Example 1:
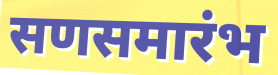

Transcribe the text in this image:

सणसमारंभ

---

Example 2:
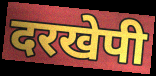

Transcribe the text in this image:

दरखेपी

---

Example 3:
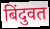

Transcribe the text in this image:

बिंदुवत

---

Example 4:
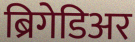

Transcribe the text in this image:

ब्रिगेडिअर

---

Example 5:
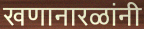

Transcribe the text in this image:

खणानारळांनी